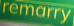
remarry